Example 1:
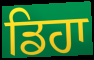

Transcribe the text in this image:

ਡਿਹਾ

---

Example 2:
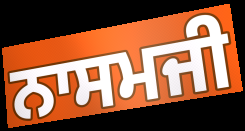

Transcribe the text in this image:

ਨਾਸਮਜੀ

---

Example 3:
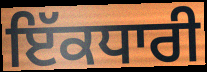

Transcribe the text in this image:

ਇੱਕਧਾਰੀ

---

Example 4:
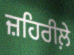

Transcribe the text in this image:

ਜ਼ਹਿਰੀਲ਼ੇ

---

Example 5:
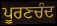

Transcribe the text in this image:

ਪੂਰਣਚੰਦ